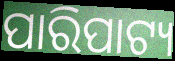
ପାରିପାଟ୍ୟ